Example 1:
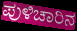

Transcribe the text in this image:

ಪುಳಿಚಾರಿನ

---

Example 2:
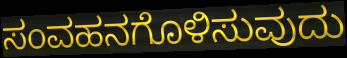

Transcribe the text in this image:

ಸಂವಹನಗೊಳಿಸುವುದು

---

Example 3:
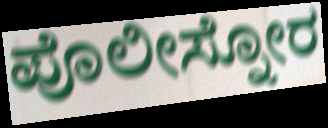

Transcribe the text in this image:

ಪೊಲೀಸ್ನೋರ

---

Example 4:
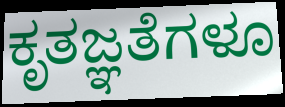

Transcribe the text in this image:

ಕೃತಜ್ಞತೆಗಳೂ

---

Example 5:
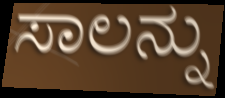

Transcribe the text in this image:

ಸಾಲನ್ನು